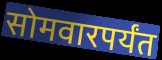
सोमवारपर्यंत